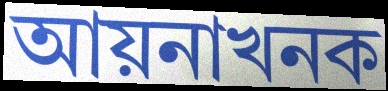
আয়নাখনক